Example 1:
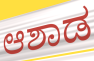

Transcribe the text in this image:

ಆಶಾಡ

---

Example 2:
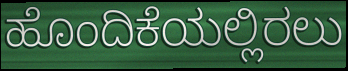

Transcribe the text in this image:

ಹೊಂದಿಕೆಯಲ್ಲಿರಲು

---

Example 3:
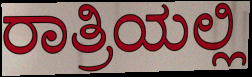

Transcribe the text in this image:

ರಾತ್ರಿಯಲ್ಲಿ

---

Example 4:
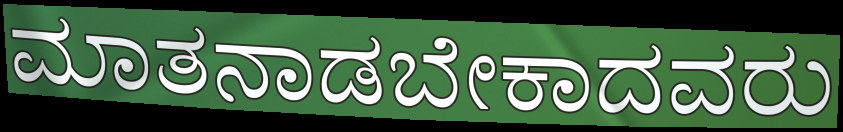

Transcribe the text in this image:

ಮಾತನಾಡಬೇಕಾದವರು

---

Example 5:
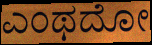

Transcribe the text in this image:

ಎಂಥದೋ